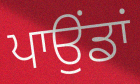
ਪਾਉਂਡਾਂ